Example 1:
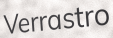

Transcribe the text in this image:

Verrastro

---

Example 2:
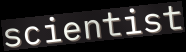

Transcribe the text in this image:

scientist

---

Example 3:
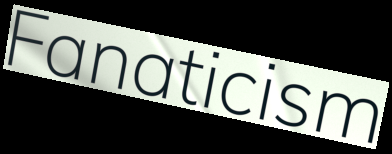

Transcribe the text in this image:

Fanaticism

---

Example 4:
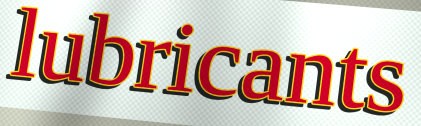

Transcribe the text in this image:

lubricants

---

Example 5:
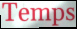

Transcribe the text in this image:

Temps